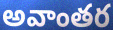
అవాంతర